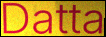
Datta